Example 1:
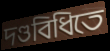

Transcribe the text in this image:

দণ্ডবিধিতে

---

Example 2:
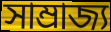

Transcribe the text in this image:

সাম্রাজ্য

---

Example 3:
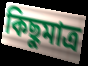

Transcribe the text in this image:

কিছুমাত্র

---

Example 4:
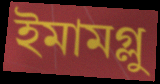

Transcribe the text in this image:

ইমামগ্লু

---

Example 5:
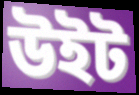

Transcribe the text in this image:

উইট